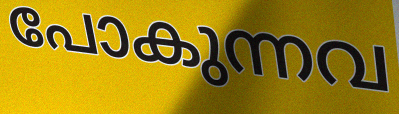
പോകുന്നവ